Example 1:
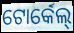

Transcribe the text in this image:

ଟୋର୍କେଲ୍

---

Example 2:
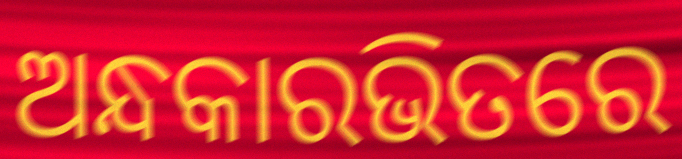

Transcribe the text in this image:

ଅନ୍ଧକାରଭିତରେ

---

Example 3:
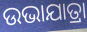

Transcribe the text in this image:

ଉଭାଯାତ୍ରା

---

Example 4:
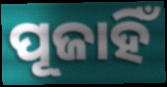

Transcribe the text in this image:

ପୂଜାହିଁ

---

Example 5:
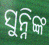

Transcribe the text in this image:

ସୁନ୍ନିଙ୍କ